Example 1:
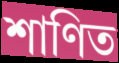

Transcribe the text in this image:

শাণিত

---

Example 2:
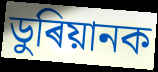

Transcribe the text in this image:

ডুৰিয়ানক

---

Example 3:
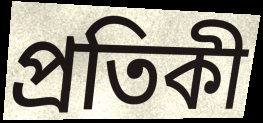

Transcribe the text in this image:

প্ৰতিকী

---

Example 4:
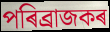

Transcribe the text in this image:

পৰিব্ৰাজকৰ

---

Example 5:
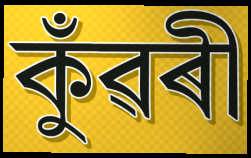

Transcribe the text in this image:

কুঁৱৰী